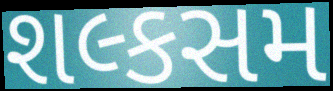
શલ્કસમ